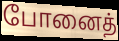
போனைத்